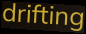
drifting